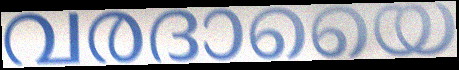
വരദായൈ